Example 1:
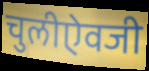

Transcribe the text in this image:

चुलीऐवजी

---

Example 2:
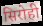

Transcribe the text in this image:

सिरोही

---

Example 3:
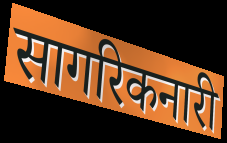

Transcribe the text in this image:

सागरिकनारी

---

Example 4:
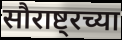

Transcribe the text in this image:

सौराष्ट्रच्या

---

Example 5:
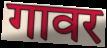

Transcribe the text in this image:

गावर